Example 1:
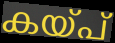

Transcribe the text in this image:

കയ്പ്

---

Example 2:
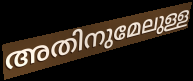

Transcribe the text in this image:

അതിനുമേലുള്ള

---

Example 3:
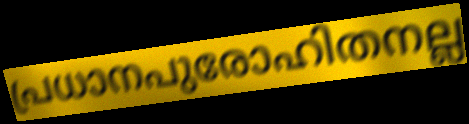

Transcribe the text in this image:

പ്രധാനപുരോഹിതനല്ല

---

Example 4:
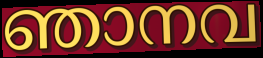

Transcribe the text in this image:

ഞാനവ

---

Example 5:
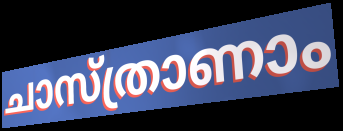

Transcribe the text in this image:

ചാസ്ത്രാണാം